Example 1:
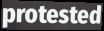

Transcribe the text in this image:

protested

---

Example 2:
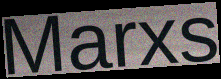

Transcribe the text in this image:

Marxs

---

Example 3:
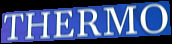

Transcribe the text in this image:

THERMO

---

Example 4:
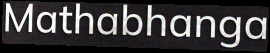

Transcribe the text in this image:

Mathabhanga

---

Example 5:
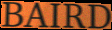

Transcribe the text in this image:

BAIRD